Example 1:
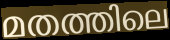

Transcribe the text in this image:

മതത്തിലെ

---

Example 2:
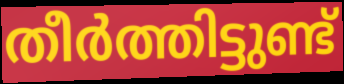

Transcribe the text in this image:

തീർത്തിട്ടുണ്ട്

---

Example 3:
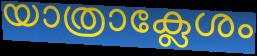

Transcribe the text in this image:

യാത്രാക്ലേശം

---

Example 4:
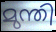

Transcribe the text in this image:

മുന്തി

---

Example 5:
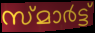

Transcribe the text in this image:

സ്മാർട്ട്